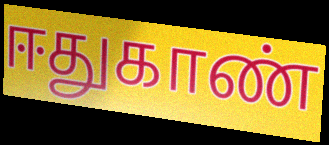
ஈதுகாண்